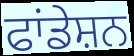
ਫਾਂਡੇਸ਼ਨ